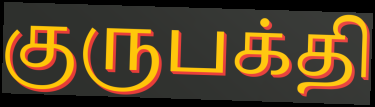
குருபக்தி